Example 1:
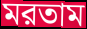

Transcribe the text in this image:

মরতাম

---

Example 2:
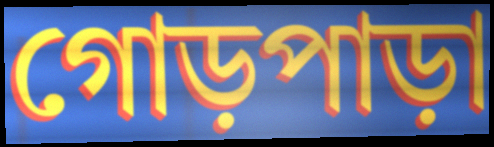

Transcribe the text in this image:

গোড়পাড়া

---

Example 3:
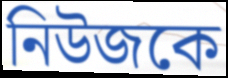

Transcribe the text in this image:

নিউজকে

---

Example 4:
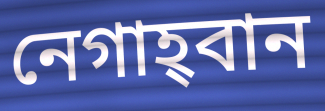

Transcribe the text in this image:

নেগাহ্‌বান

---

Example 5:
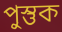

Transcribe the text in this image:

পুস্তুক